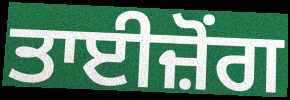
ਤਾਈਜ਼ੋਂਗ